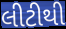
લીટીથી